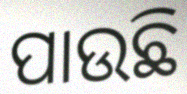
ପାଉଛି